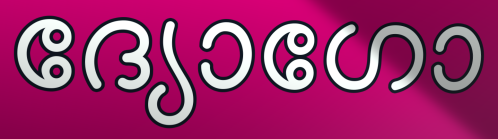
ദ്യോഗോ